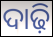
ଦାଢ଼ି